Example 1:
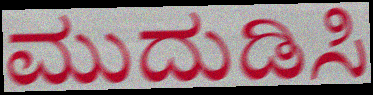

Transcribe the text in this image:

ಮುದುಡಿಸಿ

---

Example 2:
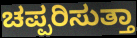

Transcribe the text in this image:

ಚಪ್ಪರಿಸುತ್ತಾ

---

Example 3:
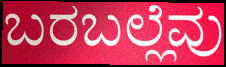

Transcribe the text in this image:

ಬರಬಲ್ಲೆವು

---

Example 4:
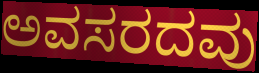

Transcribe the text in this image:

ಅವಸರದವು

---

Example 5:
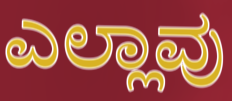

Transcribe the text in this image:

ಎಲ್ಲಾವು